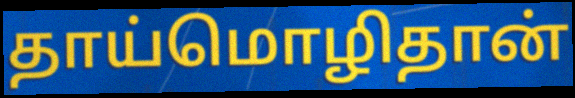
தாய்மொழிதான்